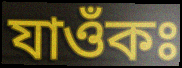
যাওঁকঃ